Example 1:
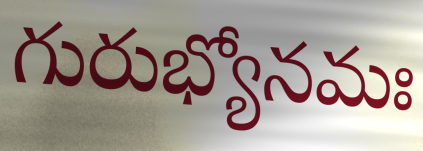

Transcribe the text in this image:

గురుభ్యోనమః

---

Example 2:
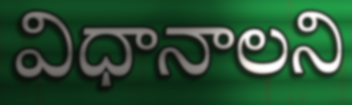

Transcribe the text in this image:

విధానాలని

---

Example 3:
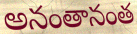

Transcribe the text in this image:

అనంతానంత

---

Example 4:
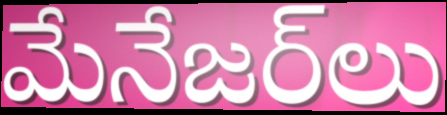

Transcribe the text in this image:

మేనేజర్‌లు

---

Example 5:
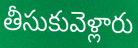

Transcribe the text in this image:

తీసుకువెళ్లారు